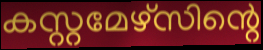
കസ്റ്റമേഴ്സിന്റെ